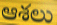
ఆశలు